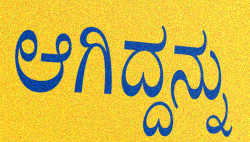
ಆಗಿದ್ದನ್ನು